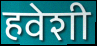
हवेशी